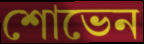
শোভেন